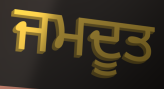
ਜਮਦੂਤ